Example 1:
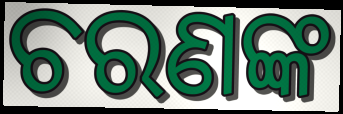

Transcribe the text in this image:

ଚରଣଙ୍କ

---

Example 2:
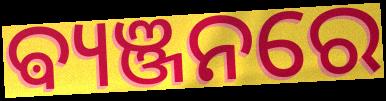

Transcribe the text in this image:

ଵ୍ୟଞ୍ଜନରେ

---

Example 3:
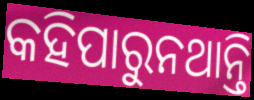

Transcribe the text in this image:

କହିପାରୁନଥାନ୍ତି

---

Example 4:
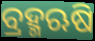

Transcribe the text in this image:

ବ୍ରହ୍ମଋଷି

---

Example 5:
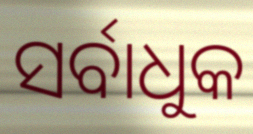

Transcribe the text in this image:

ସର୍ବାଧୁକ